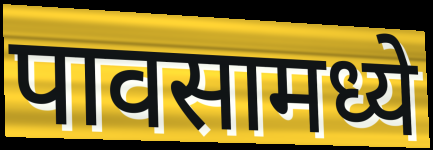
पावसामध्ये